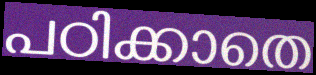
പഠിക്കാതെ